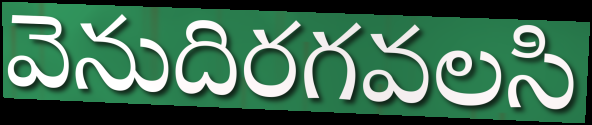
వెనుదిరగవలసి